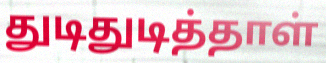
துடிதுடித்தாள்